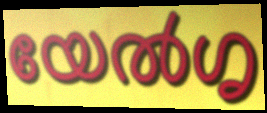
യേൽഗൃ